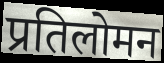
प्रतिलोमन